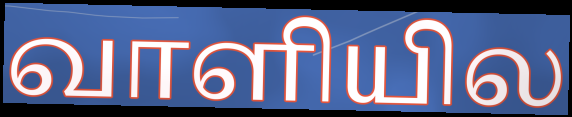
வாளியில